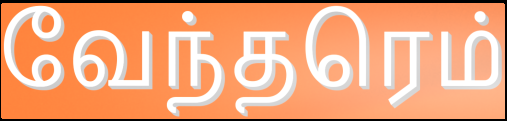
வேந்தரெம்